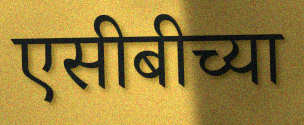
एसीबीच्या